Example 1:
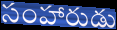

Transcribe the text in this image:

సంహారుడు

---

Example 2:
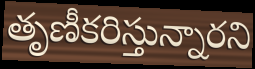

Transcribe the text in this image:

తృణీకరిస్తున్నారని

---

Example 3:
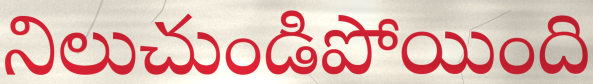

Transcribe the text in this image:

నిలుచుండిపోయింది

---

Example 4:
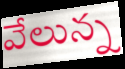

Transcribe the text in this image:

వేలున్న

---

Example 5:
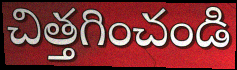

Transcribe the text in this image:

చిత్తగించండి